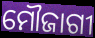
ମୌଜାଗୀ